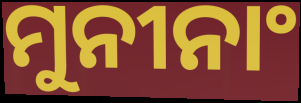
ମୁନୀନାଂ